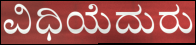
ವಿಧಿಯೆದುರು